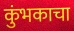
कुंभकाचा